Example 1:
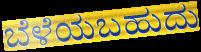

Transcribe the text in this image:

ಬೆಳೆಯಬಹುದು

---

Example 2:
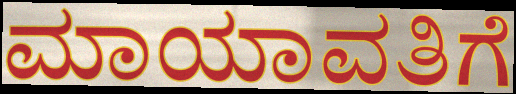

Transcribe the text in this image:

ಮಾಯಾವತಿಗೆ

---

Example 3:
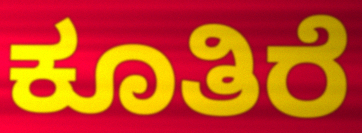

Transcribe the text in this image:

ಕೂತಿರೆ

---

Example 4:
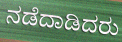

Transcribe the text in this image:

ನಡೆದಾಡಿದರು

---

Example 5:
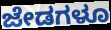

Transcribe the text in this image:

ಜೇಡಗಳೂ